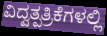
ವಿದ್ವತ್ಪತ್ರಿಕೆಗಳಲ್ಲಿ